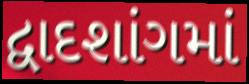
દ્વાદશાંગમાં